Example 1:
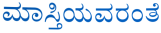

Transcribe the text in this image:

ಮಾಸ್ತಿಯವರಂತೆ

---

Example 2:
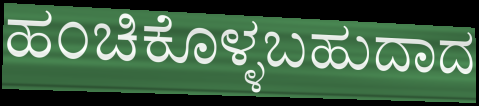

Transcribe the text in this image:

ಹಂಚಿಕೊಳ್ಳಬಹುದಾದ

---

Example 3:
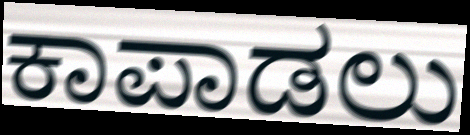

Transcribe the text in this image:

ಕಾಪಾಡಲು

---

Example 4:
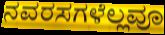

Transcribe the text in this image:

ನವರಸಗಳೆಲ್ಲವೂ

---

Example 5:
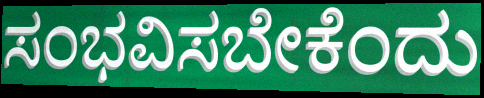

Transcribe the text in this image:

ಸಂಭವಿಸಬೇಕೆಂದು